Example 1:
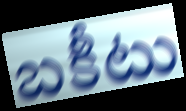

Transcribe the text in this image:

బకీటు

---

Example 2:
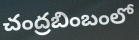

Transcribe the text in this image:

చంద్రబింబంలో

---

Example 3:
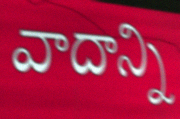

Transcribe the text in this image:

వాదాన్ని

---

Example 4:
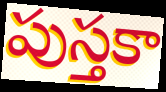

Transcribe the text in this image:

పుస్తకా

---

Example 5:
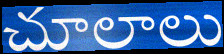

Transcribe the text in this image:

చూలాలు